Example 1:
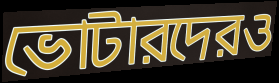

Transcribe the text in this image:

ভোটারদেরও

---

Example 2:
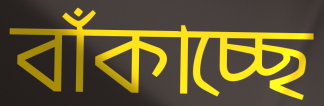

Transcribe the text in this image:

বাঁকাচ্ছে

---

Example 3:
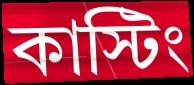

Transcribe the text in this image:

কাস্টিং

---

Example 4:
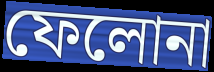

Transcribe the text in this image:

ফেলোনা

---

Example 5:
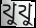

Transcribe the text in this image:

থুথু